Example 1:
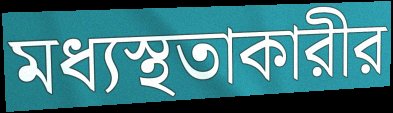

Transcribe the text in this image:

মধ্যস্থতাকারীর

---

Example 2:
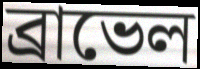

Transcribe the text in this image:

ব্রাভেল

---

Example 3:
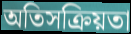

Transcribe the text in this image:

অতিসক্রিয়তা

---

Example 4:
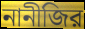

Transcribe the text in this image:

নানীজির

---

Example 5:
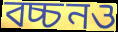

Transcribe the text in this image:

বচ্চনও